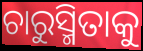
ଚାରୁସ୍ମିତାକୁ